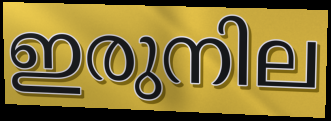
ഇരുനില